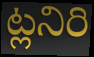
ట్లనిరి